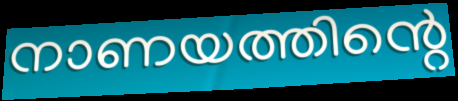
നാണയത്തിന്റെ